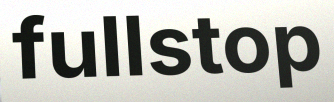
fullstop